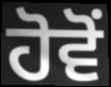
ਹੋਵੋਂ